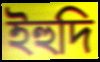
ইহুদি